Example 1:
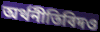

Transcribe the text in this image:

অর্থনীতিবিদও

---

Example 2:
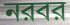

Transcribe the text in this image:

নরবর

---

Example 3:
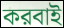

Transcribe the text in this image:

করবাই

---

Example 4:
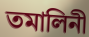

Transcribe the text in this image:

তমালিনী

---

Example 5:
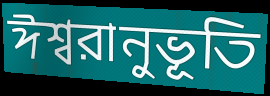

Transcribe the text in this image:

ঈশ্বরানুভূতি